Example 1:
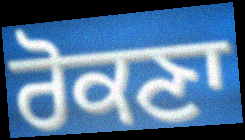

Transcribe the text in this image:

ਰੋਕਣਾ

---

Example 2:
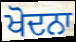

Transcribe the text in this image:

ਖੋਦਨਾ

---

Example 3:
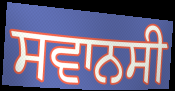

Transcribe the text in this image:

ਸਵਾਨਸੀ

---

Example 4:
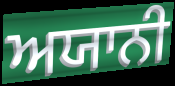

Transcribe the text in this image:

ਅਯਾਨੀ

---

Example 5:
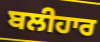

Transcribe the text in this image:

ਬਲੀਹਾਰ